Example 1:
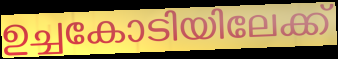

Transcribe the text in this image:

ഉച്ചകോടിയിലേക്ക്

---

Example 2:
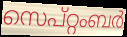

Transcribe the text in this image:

സെപ്റ്റംബർ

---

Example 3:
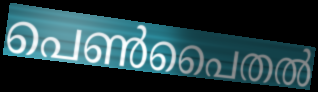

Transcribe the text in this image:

പെൺപൈതൽ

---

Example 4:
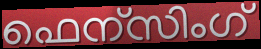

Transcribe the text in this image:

ഫെന്സിംഗ്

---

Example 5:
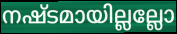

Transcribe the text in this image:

നഷ്ടമായില്ലല്ലോ